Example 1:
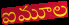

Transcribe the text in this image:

ఐమూల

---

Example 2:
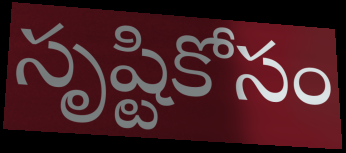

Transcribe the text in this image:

సృష్టికోసం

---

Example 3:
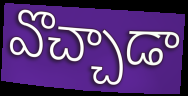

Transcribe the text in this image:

వొచ్చాడా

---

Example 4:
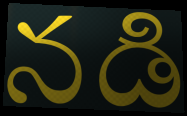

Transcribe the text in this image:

నడి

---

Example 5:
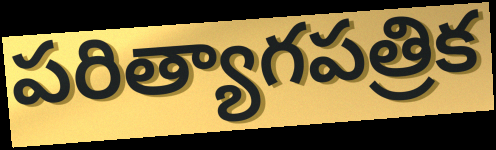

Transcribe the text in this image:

పరిత్యాగపత్రిక